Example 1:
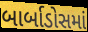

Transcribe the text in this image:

બાર્બાડોસમાં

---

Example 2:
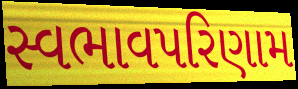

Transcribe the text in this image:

સ્વભાવપરિણામ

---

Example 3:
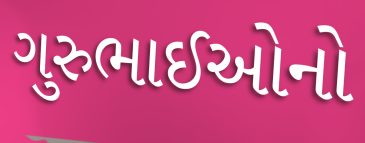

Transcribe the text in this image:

ગુરુભાઈઓનો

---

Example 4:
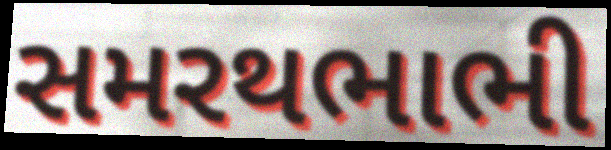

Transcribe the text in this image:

સમરથભાભી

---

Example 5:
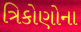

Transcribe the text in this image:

ત્રિકોણોના